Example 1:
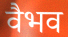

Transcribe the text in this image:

वैभव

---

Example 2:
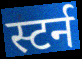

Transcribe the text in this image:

स्टर्न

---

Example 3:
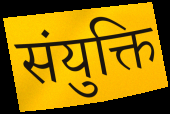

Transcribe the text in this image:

संयुक्ति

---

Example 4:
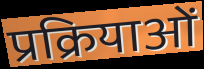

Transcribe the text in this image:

प्रक्रियाओं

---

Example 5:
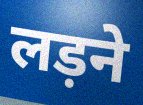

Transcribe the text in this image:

लड़ने